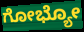
ಗೋಭ್ಯೋ